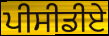
ਪੀਸੀਡੀਏ